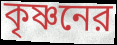
কৃষ্ণনের